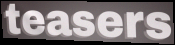
teasers